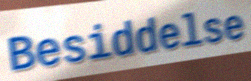
Besiddelse